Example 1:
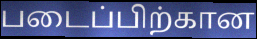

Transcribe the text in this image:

படைப்பிற்கான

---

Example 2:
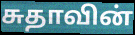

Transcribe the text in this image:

சுதாவின்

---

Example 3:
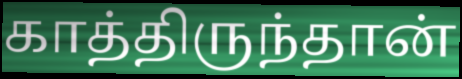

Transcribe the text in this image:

காத்திருந்தான்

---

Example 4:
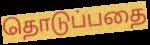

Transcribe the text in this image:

தொடுப்பதை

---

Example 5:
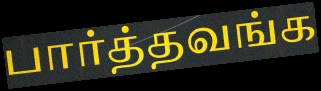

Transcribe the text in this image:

பார்த்தவங்க